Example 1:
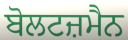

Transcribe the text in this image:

ਬੋਲਟਜ਼ਮੈਨ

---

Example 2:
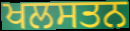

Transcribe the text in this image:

ਖਲਸਤਨ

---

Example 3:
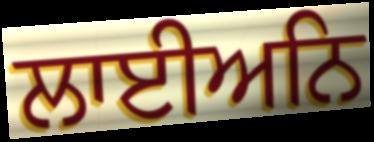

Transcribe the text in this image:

ਲਾਈਅਨਿ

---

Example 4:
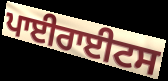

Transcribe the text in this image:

ਪਾਈਰਾਈਟਸ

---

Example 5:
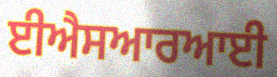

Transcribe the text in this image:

ਈਐਸਆਰਆਈ